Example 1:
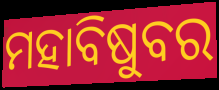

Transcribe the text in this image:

ମହାବିଷୁବର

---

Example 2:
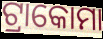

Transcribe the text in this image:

ଟ୍ରାକୋମା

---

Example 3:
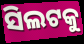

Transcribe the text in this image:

ସିଲଟକୁ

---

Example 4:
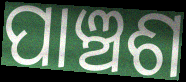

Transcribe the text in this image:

ପାଞ୍ଚଶ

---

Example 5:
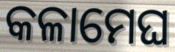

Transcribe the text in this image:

କଳାମେଘ